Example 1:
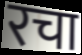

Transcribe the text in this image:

रचा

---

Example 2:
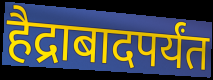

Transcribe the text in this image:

हैद्राबादपर्यंत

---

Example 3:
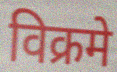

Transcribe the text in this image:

विक्रमे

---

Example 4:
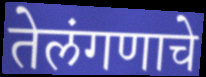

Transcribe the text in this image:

तेलंगणाचे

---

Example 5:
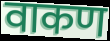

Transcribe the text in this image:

वाकण